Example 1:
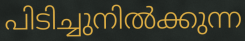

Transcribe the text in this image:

പിടിച്ചുനിൽക്കുന്ന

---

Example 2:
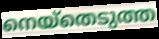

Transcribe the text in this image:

നെയ്തെടുത്ത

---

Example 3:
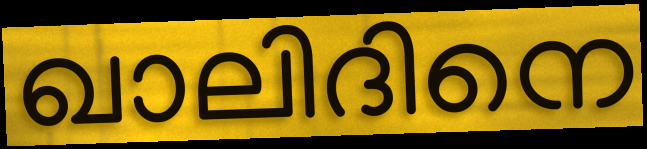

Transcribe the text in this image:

ഖാലിദിനെ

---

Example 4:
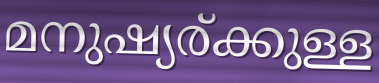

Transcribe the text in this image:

മനുഷ്യര്ക്കുള്ള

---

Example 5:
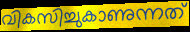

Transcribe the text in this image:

വികസിച്ചുകാണുന്നത്